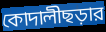
কোদালীছড়ার